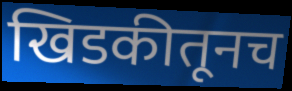
खिडकीतूनच